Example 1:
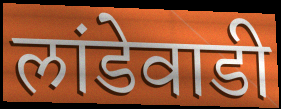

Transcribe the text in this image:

लांडेवाडी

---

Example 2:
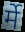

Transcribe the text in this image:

र्मे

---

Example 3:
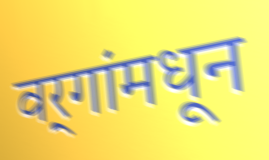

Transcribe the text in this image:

वर्गांमधून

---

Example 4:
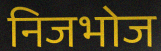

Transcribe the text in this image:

निजभोज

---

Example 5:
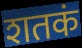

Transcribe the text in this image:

शतकं